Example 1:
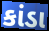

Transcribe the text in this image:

કાંડા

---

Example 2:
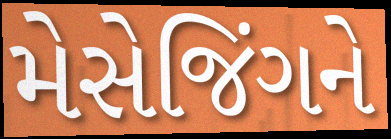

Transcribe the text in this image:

મેસેજિંગને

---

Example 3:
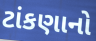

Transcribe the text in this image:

ટાંકણાનો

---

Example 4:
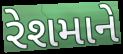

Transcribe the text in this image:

રેશમાને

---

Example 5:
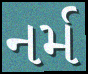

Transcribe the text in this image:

નર્મ